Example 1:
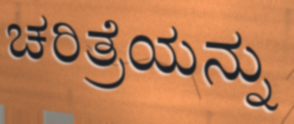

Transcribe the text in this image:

ಚರಿತ್ರೆಯನ್ನು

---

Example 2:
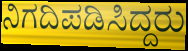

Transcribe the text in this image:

ನಿಗದಿಪಡಿಸಿದ್ದರು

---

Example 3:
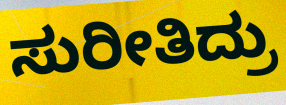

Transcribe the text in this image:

ಸುರೀತಿದ್ರು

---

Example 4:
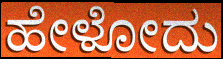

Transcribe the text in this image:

ಹೇಳೋದು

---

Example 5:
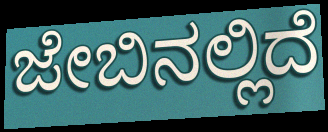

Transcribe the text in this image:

ಜೇಬಿನಲ್ಲಿದೆ